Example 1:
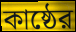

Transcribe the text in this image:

কাষ্ঠের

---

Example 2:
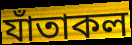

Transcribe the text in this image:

যাঁতাকল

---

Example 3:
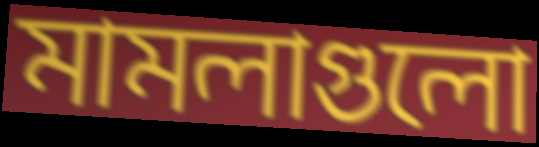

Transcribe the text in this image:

মামলাগুলো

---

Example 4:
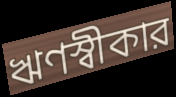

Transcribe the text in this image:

ঋণস্বীকার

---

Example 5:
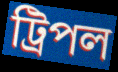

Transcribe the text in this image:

ট্রিপল